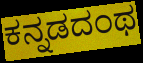
ಕನ್ನಡದಂಥ